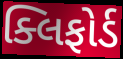
ક્લિફોર્ડ